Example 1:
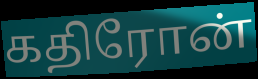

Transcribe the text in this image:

கதிரோன்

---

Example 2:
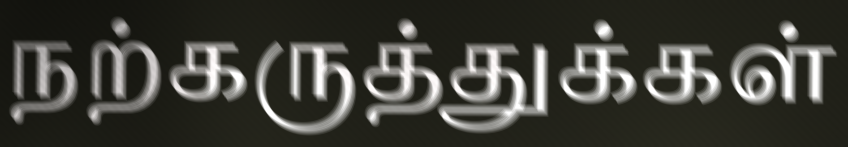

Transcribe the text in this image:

நற்கருத்துக்கள்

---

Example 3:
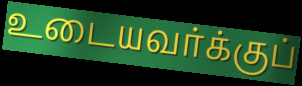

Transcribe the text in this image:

உடையவர்க்குப்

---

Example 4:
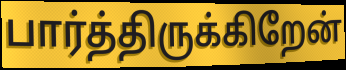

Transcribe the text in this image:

பார்த்திருக்கிறேன்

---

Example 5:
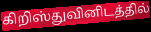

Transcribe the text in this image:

கிறிஸ்துவினிடத்தில்